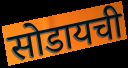
सोडायची